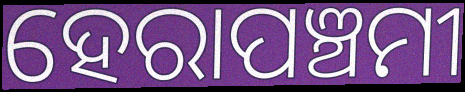
ହେରାପଞ୍ଚମୀ